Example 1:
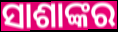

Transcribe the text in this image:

ସାଶାଙ୍କର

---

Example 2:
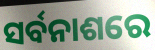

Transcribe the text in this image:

ସର୍ବନାଶରେ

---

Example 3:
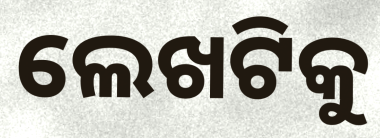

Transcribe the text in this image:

ଲେଖଟିକୁ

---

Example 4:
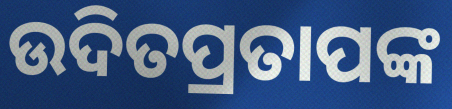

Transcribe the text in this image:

ଉଦିତପ୍ରତାପଙ୍କ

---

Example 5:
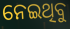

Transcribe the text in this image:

ନେଇଥିବୁ